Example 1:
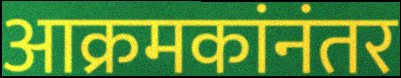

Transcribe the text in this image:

आक्रमकांनंतर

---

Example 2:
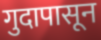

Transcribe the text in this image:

गुदापासून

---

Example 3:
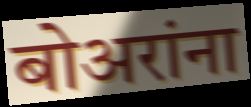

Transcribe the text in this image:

बोअरांना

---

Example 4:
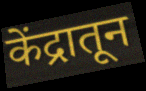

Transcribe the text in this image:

केंद्रातून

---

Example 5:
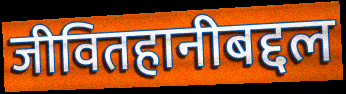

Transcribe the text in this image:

जीवितहानीबद्दल